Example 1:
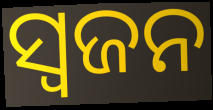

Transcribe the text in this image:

ସ୍ୱଜନ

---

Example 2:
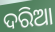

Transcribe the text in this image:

ଦରିଆ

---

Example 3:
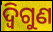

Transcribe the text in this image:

ଦ୍ୱିଗୁଣ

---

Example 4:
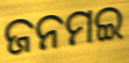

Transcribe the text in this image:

ଜନମଇ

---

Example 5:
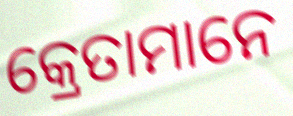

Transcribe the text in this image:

କ୍ରେତାମାନେ